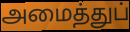
அமைத்துப்